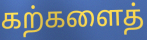
கற்களைத்